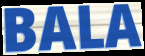
BALA